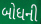
બોધની